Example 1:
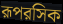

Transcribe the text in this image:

রূপরসিক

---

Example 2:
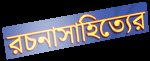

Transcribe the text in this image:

রচনাসাহিত্যের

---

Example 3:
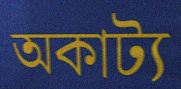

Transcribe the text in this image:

অকাট্য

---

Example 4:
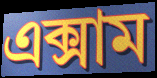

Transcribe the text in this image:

এক্সাম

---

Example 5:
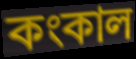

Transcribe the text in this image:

কংকাল